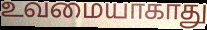
உவமையாகாது